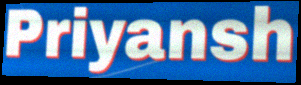
Priyansh